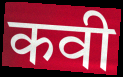
कवी